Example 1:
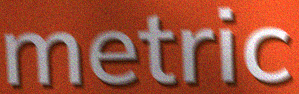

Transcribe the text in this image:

metric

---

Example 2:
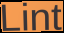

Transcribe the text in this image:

Lint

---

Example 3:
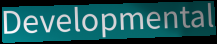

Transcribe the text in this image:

Developmental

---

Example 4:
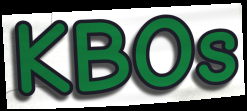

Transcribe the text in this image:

KBOs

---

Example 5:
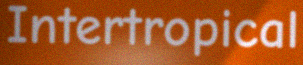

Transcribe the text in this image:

Intertropical